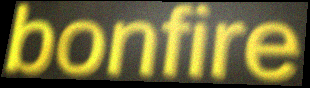
bonfire